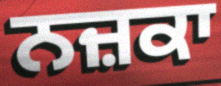
ਨਜ਼ਕਾ